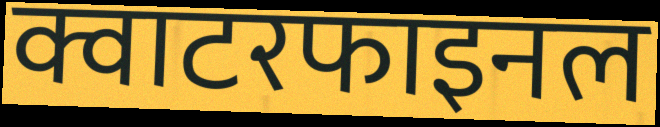
क्वाटरफाइनल